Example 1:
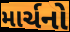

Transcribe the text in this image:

માર્ચનો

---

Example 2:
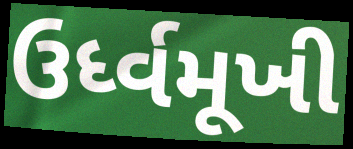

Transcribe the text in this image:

ઉર્ધ્વમૂખી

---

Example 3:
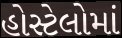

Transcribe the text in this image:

હોસ્ટેલોમાં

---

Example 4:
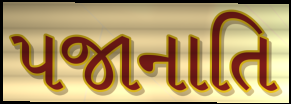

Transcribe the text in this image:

પજાનાતિ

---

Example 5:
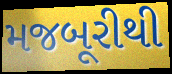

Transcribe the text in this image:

મજબૂરીથી